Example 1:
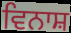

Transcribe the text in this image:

ਵਿਨਾਸ਼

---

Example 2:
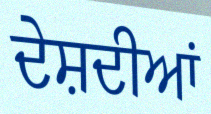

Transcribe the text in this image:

ਦੇਸ਼ਦੀਆਂ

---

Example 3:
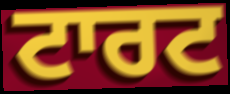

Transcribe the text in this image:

ਟਾਰਟ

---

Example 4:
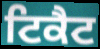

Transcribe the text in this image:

ਟਿਕੈਟ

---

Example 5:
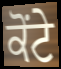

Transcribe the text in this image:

ਕੋਂਟੇ